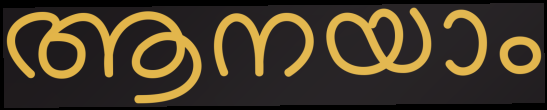
ആനയാം